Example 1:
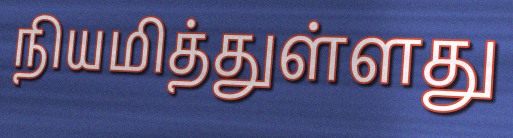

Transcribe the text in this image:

நியமித்துள்ளது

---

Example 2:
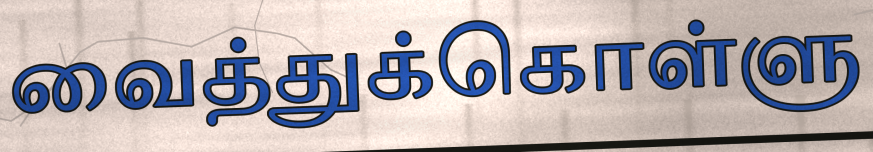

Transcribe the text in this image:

வைத்துக்கொள்ளு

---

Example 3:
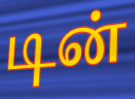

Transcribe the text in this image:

டின்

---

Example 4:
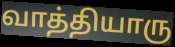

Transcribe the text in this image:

வாத்தியாரு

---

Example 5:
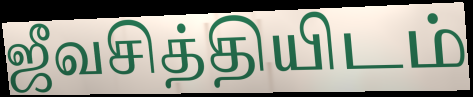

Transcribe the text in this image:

ஜீவசித்தியிடம்